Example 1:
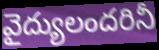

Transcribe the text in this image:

వైద్యులందరినీ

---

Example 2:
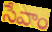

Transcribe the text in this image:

సేవాం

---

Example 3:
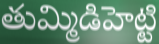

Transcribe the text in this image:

తుమ్మిడిహెట్టి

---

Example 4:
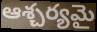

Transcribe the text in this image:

ఆశ్చర్యమై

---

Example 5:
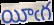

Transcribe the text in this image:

యీఁగ